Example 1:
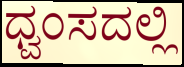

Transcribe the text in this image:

ಧ್ವಂಸದಲ್ಲಿ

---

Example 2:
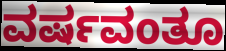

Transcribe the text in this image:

ವರ್ಷವಂತೂ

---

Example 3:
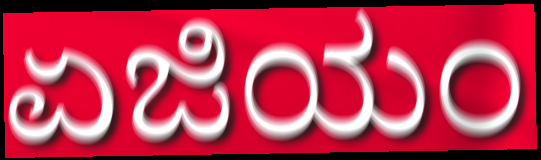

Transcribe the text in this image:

ಏಜಿಯಂ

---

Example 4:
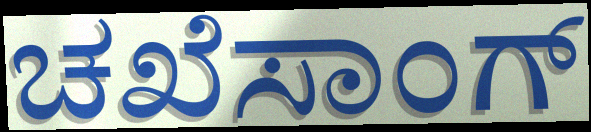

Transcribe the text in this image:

ಚಖೆಸಾಂಗ್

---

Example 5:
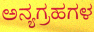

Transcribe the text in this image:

ಅನ್ಯಗ್ರಹಗಳ